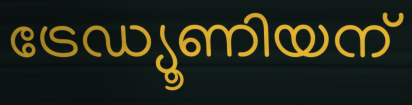
ട്രേഡ്യൂണിയന്